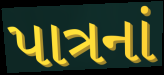
પાત્રનાં